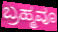
ಬ್ರಹ್ಮವೂ